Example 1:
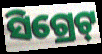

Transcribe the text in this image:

ସିଗ୍ରେଟ୍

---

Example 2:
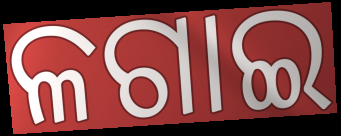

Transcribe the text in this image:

ଳଗାଇ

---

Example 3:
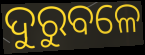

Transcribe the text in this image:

ଦୁରୁବଳେ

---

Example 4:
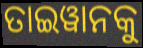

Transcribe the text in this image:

ତାଇୱାନକୁ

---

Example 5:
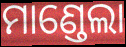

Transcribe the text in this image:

ମାଣ୍ଡେଲା